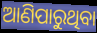
ଆଣିପାରୁଥିବା